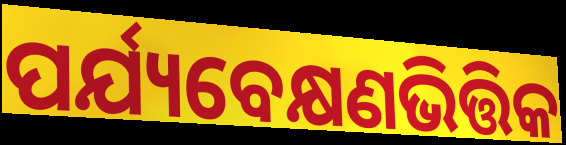
ପର୍ଯ୍ୟବେକ୍ଷଣଭିତ୍ତିକ